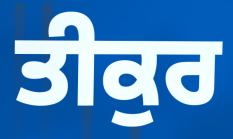
ਤੀਕੁਰ